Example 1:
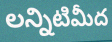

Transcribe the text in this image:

లన్నిటిమీద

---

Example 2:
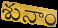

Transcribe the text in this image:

శునాం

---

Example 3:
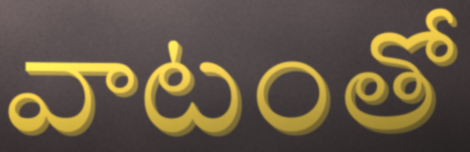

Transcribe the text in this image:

వాటంతో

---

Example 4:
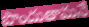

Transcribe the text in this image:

పొందుతామనే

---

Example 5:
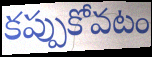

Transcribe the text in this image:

కప్పుకోవటం